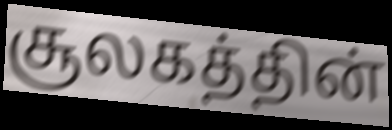
சூலகத்தின்